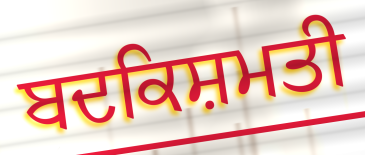
ਬਦਕਿਸ਼ਮਤੀ